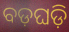
ବଡ଼ଘଡ଼ି